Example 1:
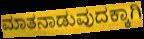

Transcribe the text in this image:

ಮಾತನಾಡುವುದಕ್ಕಾಗಿ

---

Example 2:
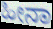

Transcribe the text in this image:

ಹೀನಾ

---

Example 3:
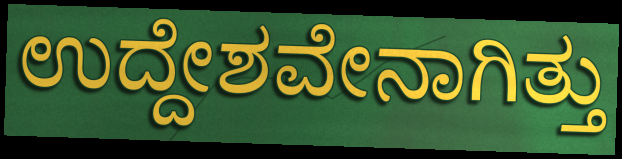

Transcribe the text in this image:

ಉದ್ದೇಶವೇನಾಗಿತ್ತು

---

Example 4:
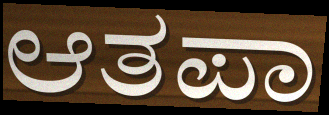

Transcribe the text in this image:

ಆತಪಾ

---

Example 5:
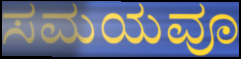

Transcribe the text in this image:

ಸಮಯವೂ